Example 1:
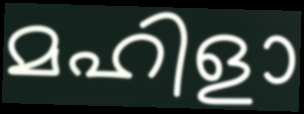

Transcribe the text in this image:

മഹിളാ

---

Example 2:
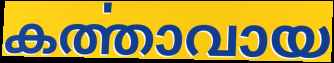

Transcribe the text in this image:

കൎത്താവായ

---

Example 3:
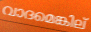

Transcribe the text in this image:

വാദമെങ്കില്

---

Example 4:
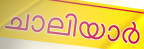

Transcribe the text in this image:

ചാലിയാർ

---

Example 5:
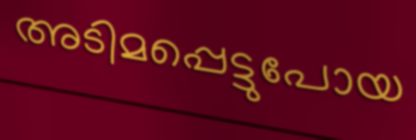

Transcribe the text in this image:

അടിമപ്പെട്ടുപോയ